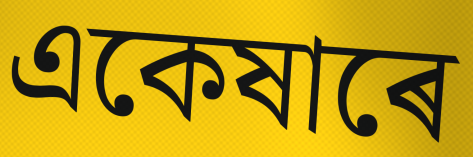
একেষাৰে